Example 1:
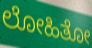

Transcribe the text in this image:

ಲೋಹಿತೋ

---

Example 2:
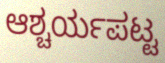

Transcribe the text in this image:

ಆಶ್ಚರ್ಯಪಟ್ಟ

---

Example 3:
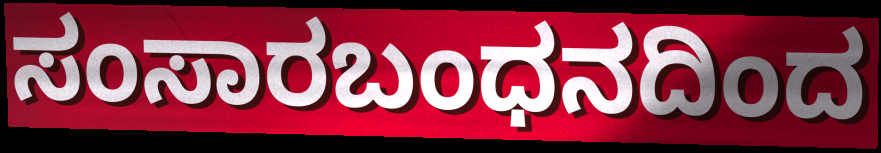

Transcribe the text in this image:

ಸಂಸಾರಬಂಧನದಿಂದ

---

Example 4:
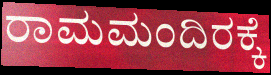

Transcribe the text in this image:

ರಾಮಮಂದಿರಕ್ಕೆ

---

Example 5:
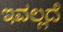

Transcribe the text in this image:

ಇವಲ್ಲದೆ